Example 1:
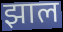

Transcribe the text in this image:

झाल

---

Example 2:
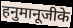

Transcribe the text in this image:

हनुमानूजीके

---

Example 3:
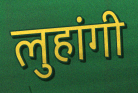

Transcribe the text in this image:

लुहांगी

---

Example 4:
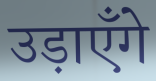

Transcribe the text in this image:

उड़ाएँगे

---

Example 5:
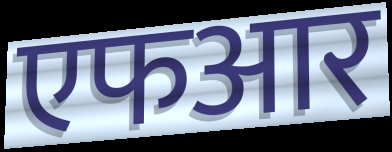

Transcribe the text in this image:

एफआर